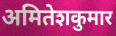
अमितेशकुमार